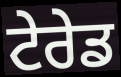
ਟੇਰੇਡ